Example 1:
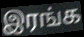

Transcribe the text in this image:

இரங்க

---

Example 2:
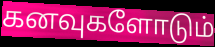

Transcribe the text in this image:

கனவுகளோடும்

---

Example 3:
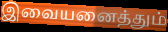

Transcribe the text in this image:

இவையனைத்தும்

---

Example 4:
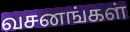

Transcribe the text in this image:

வசனங்கள்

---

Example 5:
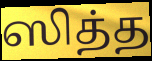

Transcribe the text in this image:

ஸித்த